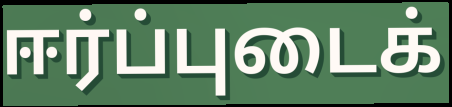
ஈர்ப்புடைக்